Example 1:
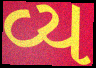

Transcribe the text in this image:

વ્ય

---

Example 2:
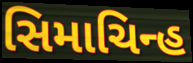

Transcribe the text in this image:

સિમાચિન્હ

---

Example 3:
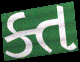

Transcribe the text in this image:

ક્ત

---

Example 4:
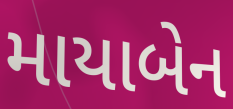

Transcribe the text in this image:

માયાબેન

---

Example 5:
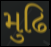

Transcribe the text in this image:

મુઢિ